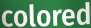
colored